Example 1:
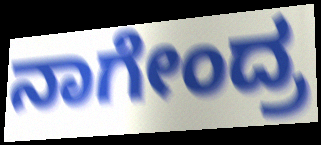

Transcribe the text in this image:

ನಾಗೇಂದ್ರ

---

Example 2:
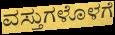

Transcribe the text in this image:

ವಸ್ತುಗಳೊಳಗೆ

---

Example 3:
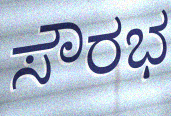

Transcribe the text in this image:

ಸೌರಭ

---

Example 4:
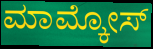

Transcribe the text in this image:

ಮಾಮ್ಕೋಸ್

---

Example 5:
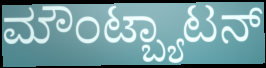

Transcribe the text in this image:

ಮೌಂಟ್ಬ್ಯಾಟನ್